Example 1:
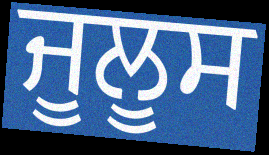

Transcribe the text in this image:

ਜੂਲੂਸ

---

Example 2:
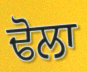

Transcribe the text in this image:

ਢੋਲਾ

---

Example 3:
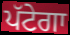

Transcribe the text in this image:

ਪੱਟੇਗਾ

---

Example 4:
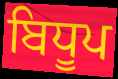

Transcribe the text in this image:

ਬਿਧੂਪ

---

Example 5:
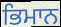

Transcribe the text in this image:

ਭਿਮਾਨ